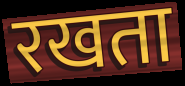
रखता